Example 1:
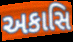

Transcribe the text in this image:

અકાસિ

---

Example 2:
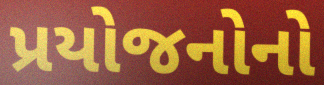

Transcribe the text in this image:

પ્રયોજનોનો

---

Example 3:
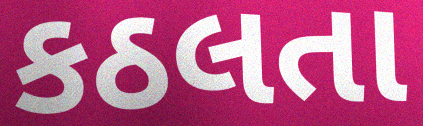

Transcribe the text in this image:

કઠલતા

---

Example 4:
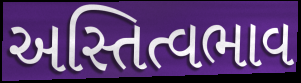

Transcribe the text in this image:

અસ્તિત્વભાવ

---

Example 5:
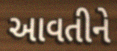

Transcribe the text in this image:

આવતીને